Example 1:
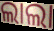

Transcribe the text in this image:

ଲାଲା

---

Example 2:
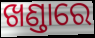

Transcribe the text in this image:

ଖଣ୍ଡାରେ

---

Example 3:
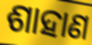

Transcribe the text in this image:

ଶାହାଣ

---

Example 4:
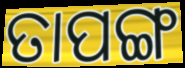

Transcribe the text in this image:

ତାପଙ୍ଗ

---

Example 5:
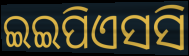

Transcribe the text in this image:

ଇଇପିଏସସି